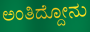
ಅಂತಿದ್ದೋನು